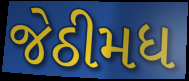
જેઠીમધ